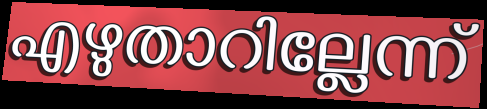
എഴുതാറില്ലേന്ന്